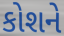
કોશને